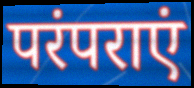
परंपराएं